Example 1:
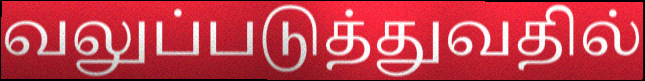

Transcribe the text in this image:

வலுப்படுத்துவதில்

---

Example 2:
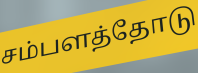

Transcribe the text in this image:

சம்பளத்தோடு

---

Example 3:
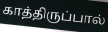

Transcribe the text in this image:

காத்திருப்பால்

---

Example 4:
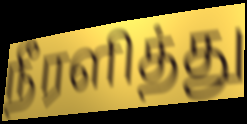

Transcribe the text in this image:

நீரளித்து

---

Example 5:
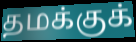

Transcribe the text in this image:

தமக்குக்